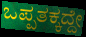
ಒಪ್ಪತಕ್ಕದ್ದೇ